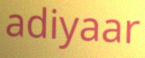
adiyaar